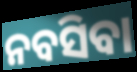
ନବସିବା